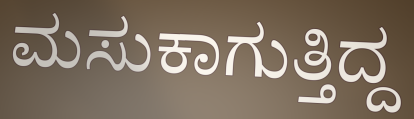
ಮಸುಕಾಗುತ್ತಿದ್ದ